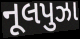
નૂલપુઝા